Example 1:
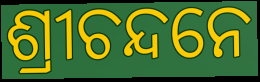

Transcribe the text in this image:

ଶ୍ରୀଚନ୍ଦନେ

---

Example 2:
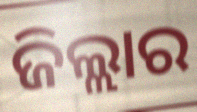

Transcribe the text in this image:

ଜିଲ୍ଲାର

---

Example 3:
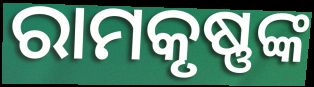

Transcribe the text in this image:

ରାମକୃଷ୍ଣଙ୍କ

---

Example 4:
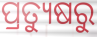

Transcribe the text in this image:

ପ୍ରତ୍ୟୁଷରୁ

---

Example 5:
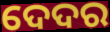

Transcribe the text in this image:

ଦେଦର